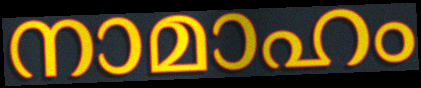
നാമാഹം